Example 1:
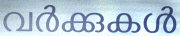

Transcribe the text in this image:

വർക്കുകൾ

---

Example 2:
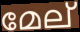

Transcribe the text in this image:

മേല്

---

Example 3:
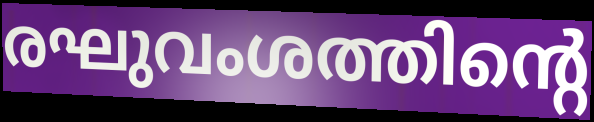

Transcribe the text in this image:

രഘുവംശത്തിന്റെ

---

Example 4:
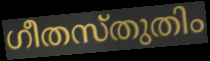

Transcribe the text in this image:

ഗീതസ്തുതിം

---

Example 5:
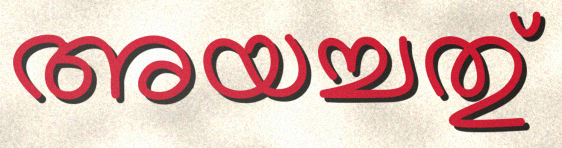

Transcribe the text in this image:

അയച്ചതു്